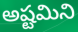
అష్టమిని